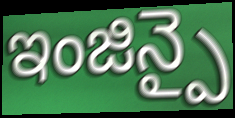
ఇంజిన్పై